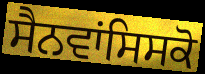
ਸੈਨਵਾਂਸਿਸਕੋ